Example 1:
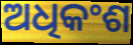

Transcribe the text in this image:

ଅଧିକଂଶ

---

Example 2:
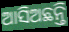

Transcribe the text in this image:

ଆସିଅଛନ୍ତି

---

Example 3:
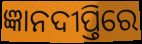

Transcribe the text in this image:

ଜ୍ଞାନଦୀପ୍ତିରେ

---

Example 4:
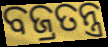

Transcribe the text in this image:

ବଜ୍ରତନ୍ତ୍ର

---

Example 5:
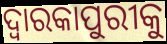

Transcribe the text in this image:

ଦ୍ୱାରକାପୁରୀକୁ